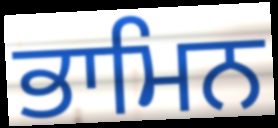
ਭਾਮਿਨ